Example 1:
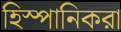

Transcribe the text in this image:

হিস্পানিকরা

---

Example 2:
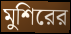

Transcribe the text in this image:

মুশিরের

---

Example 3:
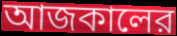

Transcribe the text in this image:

আজকালের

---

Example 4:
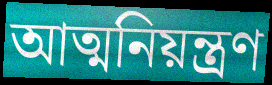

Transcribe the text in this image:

আত্মনিয়ন্ত্রণ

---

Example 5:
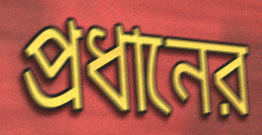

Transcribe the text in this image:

প্রধানের